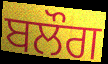
ਬਲੌਗ